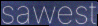
sawest